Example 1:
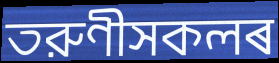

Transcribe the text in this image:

তৰুণীসকলৰ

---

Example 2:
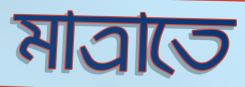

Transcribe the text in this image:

মাত্ৰাতে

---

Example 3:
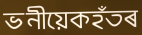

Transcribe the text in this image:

ভনীয়েকহঁতৰ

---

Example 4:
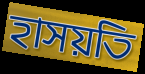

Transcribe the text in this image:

হাসয়তি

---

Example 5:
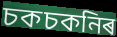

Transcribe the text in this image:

চকচকনিৰ